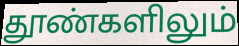
தூண்களிலும்